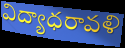
విద్యాధరావళి